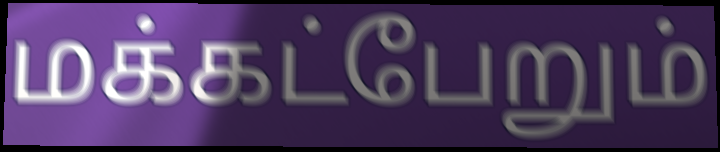
மக்கட்பேறும்